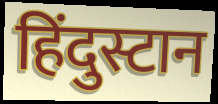
हिंदुस्टान